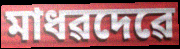
মাধৱদেৱে